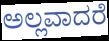
ಅಲ್ಲವಾದರೆ